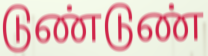
டுண்டுண்